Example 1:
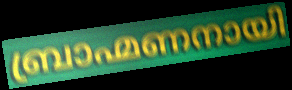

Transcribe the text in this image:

ബ്രാഹ്മണനായി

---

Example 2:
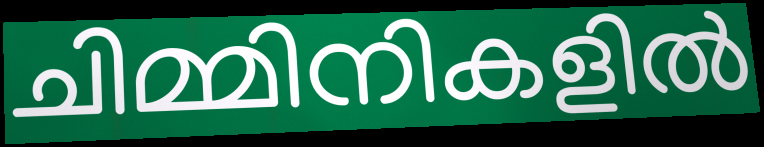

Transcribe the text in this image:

ചിമ്മിനികളിൽ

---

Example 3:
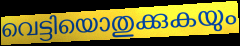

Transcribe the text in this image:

വെട്ടിയൊതുക്കുകയും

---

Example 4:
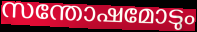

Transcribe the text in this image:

സന്തോഷമോടും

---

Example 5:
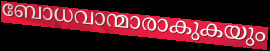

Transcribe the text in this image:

ബോധവാന്മാരാകുകയും